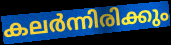
കലർന്നിരിക്കും